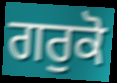
ਗਰੁਕੋ